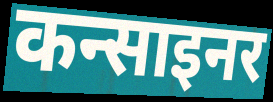
कन्साइनर